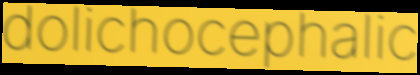
dolichocephalic